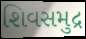
શિવસમુદ્ર